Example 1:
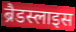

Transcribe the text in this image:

ब्रैडस्लाइस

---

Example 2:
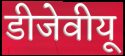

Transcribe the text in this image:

डीजेवीयू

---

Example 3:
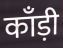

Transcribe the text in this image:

काँड़ी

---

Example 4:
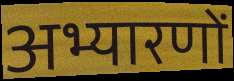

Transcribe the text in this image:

अभ्यारणों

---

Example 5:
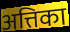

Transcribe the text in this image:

अत्तिका